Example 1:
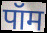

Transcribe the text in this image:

पॉम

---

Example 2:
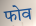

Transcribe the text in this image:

फोव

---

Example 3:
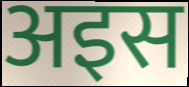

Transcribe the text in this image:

अइस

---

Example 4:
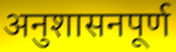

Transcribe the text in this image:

अनुशासनपूर्ण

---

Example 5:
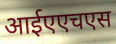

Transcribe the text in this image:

आईएएचएस